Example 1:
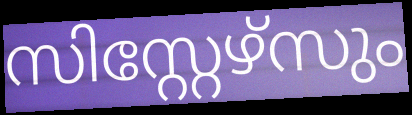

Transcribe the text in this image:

സിസ്റ്റേഴ്സും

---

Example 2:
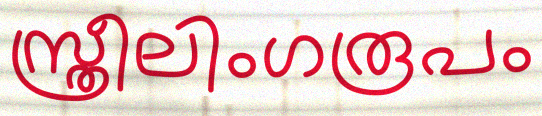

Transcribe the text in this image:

സ്ത്രീലിംഗരൂപം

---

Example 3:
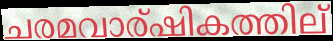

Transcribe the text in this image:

ചരമവാര്ഷികത്തില്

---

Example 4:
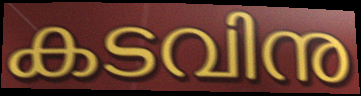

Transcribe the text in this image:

കടവിനു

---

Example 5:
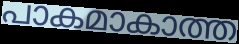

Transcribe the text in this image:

പാകമാകാത്ത